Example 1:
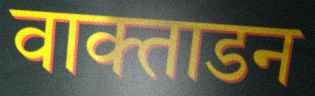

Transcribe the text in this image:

वाक्ताडन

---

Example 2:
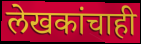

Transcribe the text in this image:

लेखकांचाही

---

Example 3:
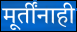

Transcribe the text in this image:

मूर्तींनाही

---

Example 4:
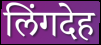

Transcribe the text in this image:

लिंगदेह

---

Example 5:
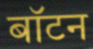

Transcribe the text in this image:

बॉटन